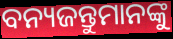
ବନ୍ୟଜନ୍ତୁମାନଙ୍କୁ